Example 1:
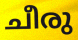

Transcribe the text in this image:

ചീരു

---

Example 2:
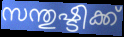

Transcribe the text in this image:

സന്തുഷ്ടിക്ക്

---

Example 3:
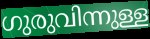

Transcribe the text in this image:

ഗുരുവിന്നുള്ള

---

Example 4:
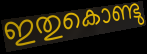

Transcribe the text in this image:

ഇതുകൊണ്ടു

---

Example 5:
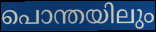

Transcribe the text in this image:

പൊന്തയിലും